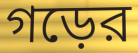
গড়ের